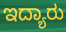
ಇದ್ಯಾರು